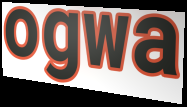
ogwa